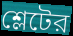
শ্লেটের